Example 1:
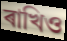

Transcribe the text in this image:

ৰাখিও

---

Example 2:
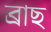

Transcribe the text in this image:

ব্ৰাছ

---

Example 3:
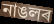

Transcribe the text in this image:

নাঙলৰ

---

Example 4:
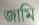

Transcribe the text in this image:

জামি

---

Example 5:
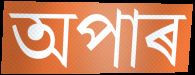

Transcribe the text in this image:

অপাৰ